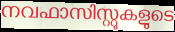
നവഫാസിസ്റ്റുകളുടെ